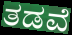
ತಡವೆ